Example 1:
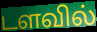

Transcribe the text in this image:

டளவில்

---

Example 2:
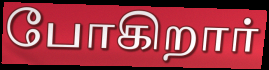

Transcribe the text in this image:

போகிறார்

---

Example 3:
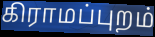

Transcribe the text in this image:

கிராமப்புறம்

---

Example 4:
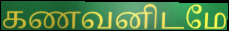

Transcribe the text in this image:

கணவனிடமே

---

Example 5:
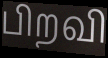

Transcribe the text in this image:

பிறவி